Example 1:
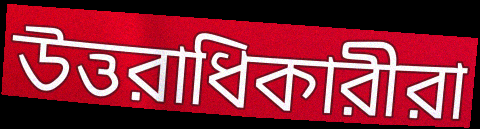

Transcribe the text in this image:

উত্তরাধিকারীরা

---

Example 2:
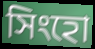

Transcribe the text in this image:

সিংহো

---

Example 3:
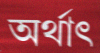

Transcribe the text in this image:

অর্থাৎ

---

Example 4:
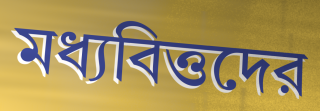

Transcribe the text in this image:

মধ্যবিত্তদের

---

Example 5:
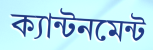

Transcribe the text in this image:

ক্যান্টনমেন্ট